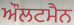
ਔਲਟਮੈਨ